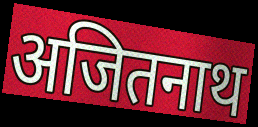
अजितनाथ